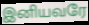
இனியவரே